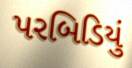
પરબિડિયું